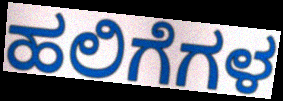
ಹಲಿಗೆಗಳ